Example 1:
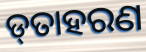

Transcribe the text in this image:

ଡ୍‌ତାହରଣ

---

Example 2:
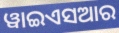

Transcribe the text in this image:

ୱାଇଏସଆର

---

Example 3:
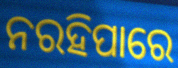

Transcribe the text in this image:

ନରହିପାରେ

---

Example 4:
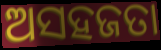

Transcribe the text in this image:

ଅସହଜତା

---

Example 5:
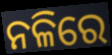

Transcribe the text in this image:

ନଳିରେ